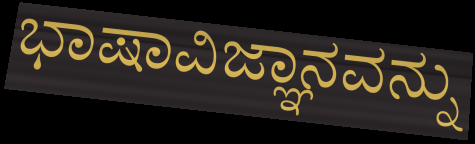
ಭಾಷಾವಿಜ್ಞಾನವನ್ನು